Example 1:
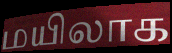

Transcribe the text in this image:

மயிலாக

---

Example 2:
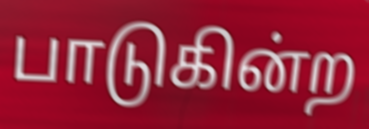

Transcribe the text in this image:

பாடுகின்ற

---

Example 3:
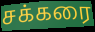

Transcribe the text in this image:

சக்கரை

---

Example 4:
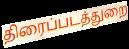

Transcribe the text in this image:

திரைப்படத்துறை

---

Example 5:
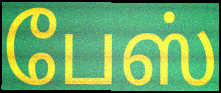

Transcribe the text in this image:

பேஸ்